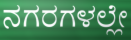
ನಗರಗಳಲ್ಲೇ